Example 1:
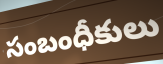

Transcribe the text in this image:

సంబంధీకులు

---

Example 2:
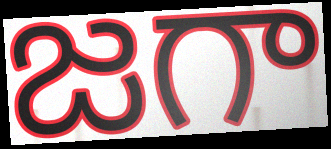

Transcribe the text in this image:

జగా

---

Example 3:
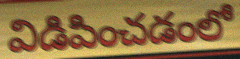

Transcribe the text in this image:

విడిపించడంలో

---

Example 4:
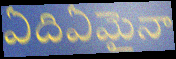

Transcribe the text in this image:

ఏదిఏమైనా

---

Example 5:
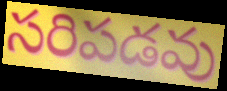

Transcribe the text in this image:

సరిపడవు